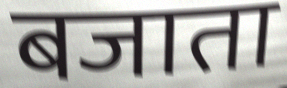
बजाता